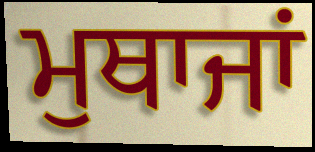
ਮੁਥਾਜਾਂ